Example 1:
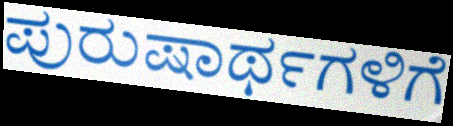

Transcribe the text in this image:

ಪುರುಷಾರ್ಥಗಳಿಗೆ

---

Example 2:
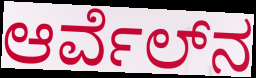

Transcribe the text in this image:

ಆರ್ವೆಲ್‍ನ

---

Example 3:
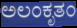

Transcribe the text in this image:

ಅಲಂಕೃತಂ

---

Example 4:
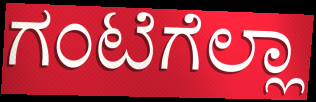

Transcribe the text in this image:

ಗಂಟೆಗೆಲ್ಲಾ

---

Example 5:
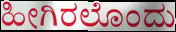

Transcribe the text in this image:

ಹೀಗಿರಲೊಂದು